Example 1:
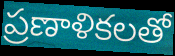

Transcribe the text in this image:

ప్రణాళికలతో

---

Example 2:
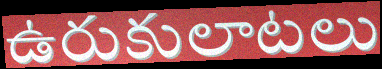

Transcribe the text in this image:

ఉరుకులాటలు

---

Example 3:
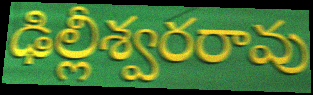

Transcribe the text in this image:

ఢిల్లీశ్వరరావు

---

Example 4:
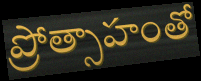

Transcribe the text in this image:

ప్రోత్సాహంతో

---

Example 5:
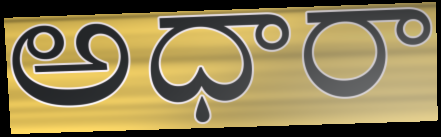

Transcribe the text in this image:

అధారా